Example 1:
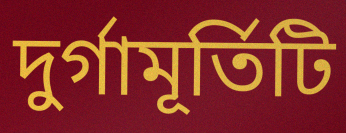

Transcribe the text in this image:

দুর্গামূর্তিটি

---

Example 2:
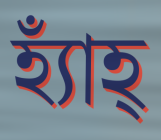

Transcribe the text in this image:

হ্যাঁহ্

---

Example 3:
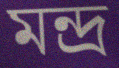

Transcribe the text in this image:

মন্দ্র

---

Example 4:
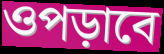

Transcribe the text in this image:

ওপড়াবে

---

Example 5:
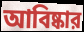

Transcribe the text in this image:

আবিষ্কার